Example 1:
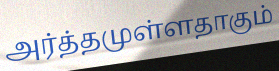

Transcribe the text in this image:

அர்த்தமுள்ளதாகும்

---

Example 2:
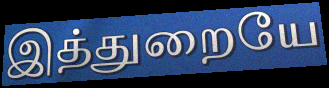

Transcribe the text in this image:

இத்துறையே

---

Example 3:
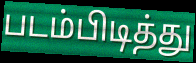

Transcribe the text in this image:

படம்பிடித்து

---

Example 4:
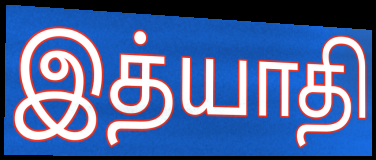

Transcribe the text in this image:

இத்யாதி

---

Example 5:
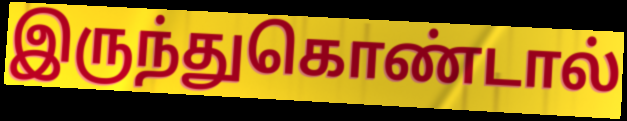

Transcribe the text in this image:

இருந்துகொண்டால்